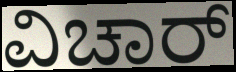
ವಿಚಾರ್